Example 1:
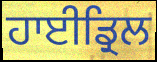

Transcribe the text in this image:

ਹਾਈਡ੍ਰਿਲ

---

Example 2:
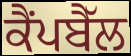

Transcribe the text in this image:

ਕੈਂਪਬੈੱਲ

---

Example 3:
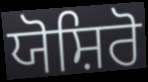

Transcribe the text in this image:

ਯੋਸ਼ਿਰੋ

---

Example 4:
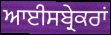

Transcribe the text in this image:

ਆਈਸਬ੍ਰੇਕਰਾਂ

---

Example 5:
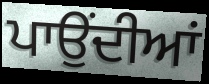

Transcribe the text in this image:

ਪਾਉਂਦੀਆਂ